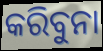
କରିବୁନା